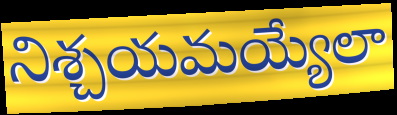
నిశ్చయమయ్యేలా